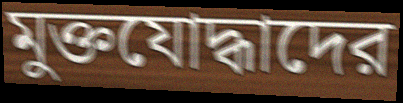
মুক্তযোদ্ধাদের